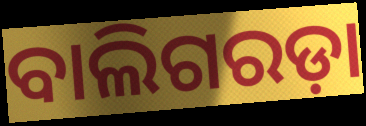
ବାଲିଗରଡ଼ା